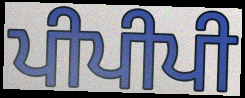
ਪੀਪੀਪੀ